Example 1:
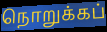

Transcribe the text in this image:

நொறுக்கப்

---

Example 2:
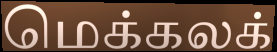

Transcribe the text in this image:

மெக்கலக்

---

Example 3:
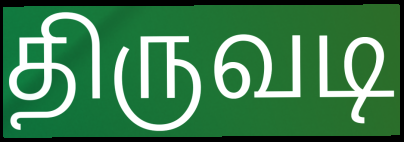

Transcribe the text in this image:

திருவடி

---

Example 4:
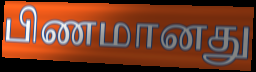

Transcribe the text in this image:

பிணமானது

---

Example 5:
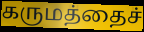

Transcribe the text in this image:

கருமத்தைச்